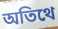
অতিথে